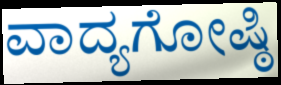
ವಾದ್ಯಗೋಷ್ಠಿ